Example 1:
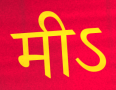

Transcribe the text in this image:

मीऽ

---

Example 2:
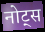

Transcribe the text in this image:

नोट्‌स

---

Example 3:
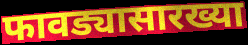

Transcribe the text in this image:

फावड्यासारख्या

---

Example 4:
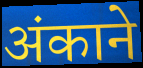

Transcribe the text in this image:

अंकाने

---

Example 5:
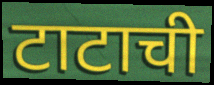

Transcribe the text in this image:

टाटाची